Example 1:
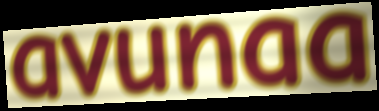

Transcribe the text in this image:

avunaa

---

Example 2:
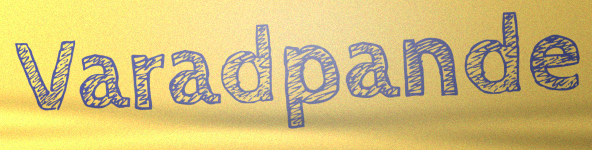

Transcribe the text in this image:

Varadpande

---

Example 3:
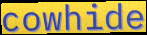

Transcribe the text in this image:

cowhide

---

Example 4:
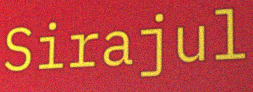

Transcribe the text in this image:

Sirajul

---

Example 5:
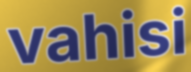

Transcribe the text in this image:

vahisi